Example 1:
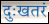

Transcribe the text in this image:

दुःखतरं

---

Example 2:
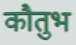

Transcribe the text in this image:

कौतुभ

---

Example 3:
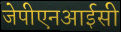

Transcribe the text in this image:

जेपीएनआईसी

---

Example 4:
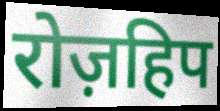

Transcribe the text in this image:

रोज़हिप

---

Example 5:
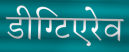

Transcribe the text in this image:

डीग्टिएरेव